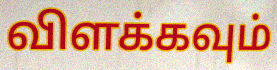
விளக்கவும்